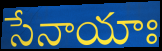
సేనాయాః